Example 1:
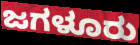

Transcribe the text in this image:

ಜಗಳೂರು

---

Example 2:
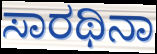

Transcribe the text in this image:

ಸಾರಥಿನಾ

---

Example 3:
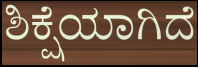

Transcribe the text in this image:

ಶಿಕ್ಷೆಯಾಗಿದೆ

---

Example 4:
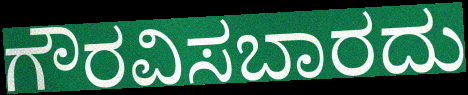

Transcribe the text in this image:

ಗೌರವಿಸಬಾರದು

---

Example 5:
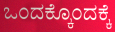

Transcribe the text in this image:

ಒಂದಕ್ಕೊಂದಕ್ಕೆ